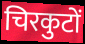
चिरकुटों